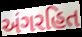
અંગરહિત